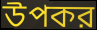
উপকর